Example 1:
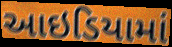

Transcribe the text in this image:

આઇડિયામાં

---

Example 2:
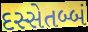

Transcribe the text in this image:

દસ્સેતબ્બં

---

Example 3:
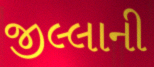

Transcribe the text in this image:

જીલ્લાની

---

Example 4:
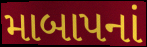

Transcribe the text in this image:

માબાપનાં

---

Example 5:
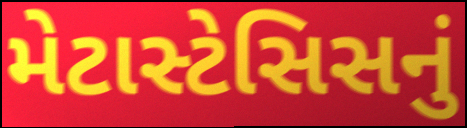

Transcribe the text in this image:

મેટાસ્ટેસિસનું